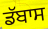
ਡੱਬਾਸ